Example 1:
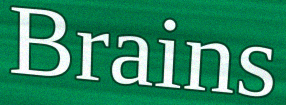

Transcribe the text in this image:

Brains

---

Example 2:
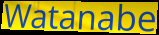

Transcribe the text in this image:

Watanabe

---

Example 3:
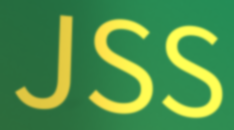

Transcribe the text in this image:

JSS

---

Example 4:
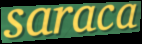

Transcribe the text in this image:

saraca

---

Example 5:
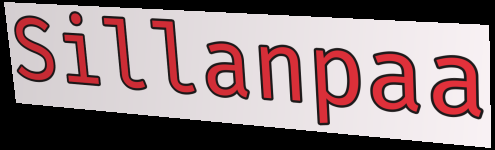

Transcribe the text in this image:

Sillanpaa